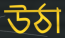
উঠা